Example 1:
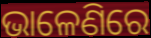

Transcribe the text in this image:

ଭାଳେଣିରେ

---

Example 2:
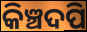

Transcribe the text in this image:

କିଞ୍ଚଦପି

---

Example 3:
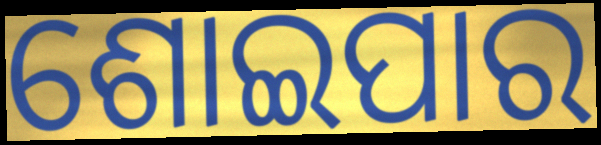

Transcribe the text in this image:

ଶୋଇପାର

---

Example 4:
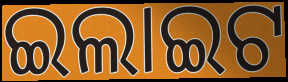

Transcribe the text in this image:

ଇଲାଇଟ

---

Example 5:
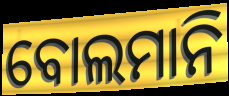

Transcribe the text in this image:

ବୋଲମାନି